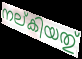
നല്കിയതു്